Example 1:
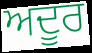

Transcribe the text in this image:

ਅਦੂਰ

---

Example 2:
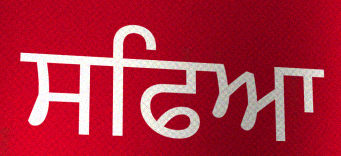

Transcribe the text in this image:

ਸਫਿਆ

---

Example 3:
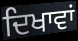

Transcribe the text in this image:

ਦਿਖਾਵਾਂ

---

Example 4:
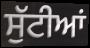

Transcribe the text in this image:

ਸੁੱਟੀਆਂ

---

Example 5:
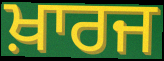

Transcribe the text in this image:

ਖ਼ਾਰਜ